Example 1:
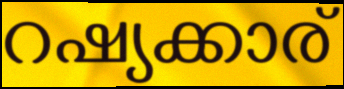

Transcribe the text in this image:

റഷ്യക്കാര്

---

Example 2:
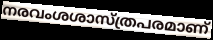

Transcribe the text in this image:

നരവംശശാസ്ത്രപരമാണ്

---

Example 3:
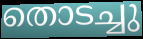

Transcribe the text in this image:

തൊടച്ചു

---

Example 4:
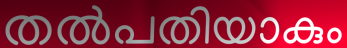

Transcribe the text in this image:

തൽപതിയാകും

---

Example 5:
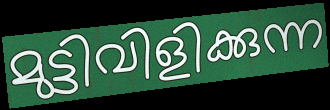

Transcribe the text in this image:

മുട്ടിവിളിക്കുന്ന